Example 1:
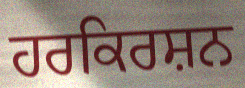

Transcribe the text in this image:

ਹਰਕਿਰਸ਼ਨ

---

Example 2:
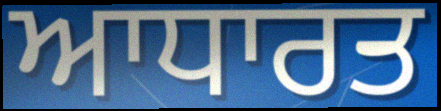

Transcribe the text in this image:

ਆਧਾਰਤ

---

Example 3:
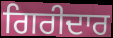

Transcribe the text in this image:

ਗਿਰੀਦਾਰ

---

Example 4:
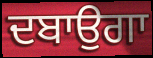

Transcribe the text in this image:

ਦਬਾਉਗਾ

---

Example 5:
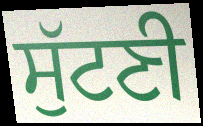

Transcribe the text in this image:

ਸੁੱਟਣੀ